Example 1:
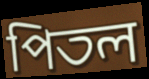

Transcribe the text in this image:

পিতল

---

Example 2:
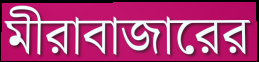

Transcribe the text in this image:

মীরাবাজারের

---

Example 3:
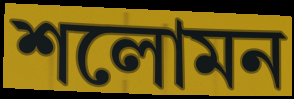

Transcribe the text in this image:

শলোমন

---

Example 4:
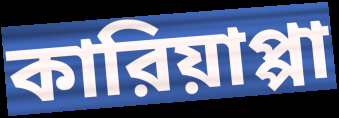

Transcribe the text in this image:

কারিয়াপ্পা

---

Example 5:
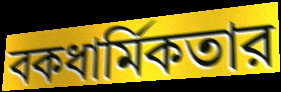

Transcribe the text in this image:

বকধার্মিকতার